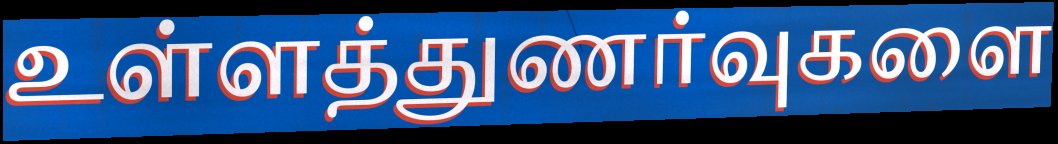
உள்ளத்துணர்வுகளை